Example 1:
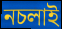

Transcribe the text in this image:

নচলাই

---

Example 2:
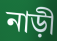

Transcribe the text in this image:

নাড়ী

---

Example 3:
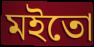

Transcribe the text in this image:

মইতো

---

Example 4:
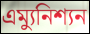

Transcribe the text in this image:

এম্যুনিশ্যন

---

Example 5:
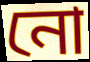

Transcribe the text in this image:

নো